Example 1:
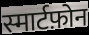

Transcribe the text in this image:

स्‍मार्टफ़ोन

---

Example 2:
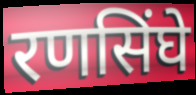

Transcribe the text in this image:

रणसिंघे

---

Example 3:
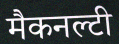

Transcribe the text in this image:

मैकनल्टी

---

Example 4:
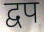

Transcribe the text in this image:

द्वप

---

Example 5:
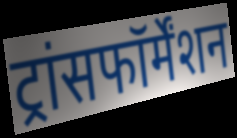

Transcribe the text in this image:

ट्रांसफॉर्मेंशन